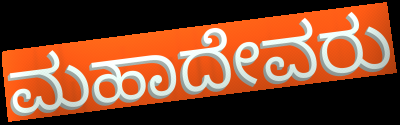
ಮಹಾದೇವರು